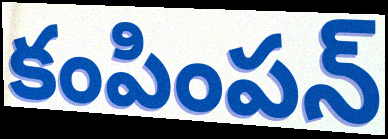
కంపింపన్